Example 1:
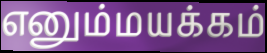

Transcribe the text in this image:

எனும்மயக்கம்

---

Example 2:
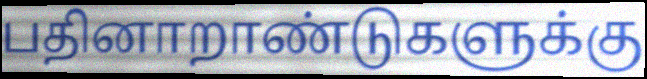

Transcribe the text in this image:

பதினாறாண்டுகளுக்கு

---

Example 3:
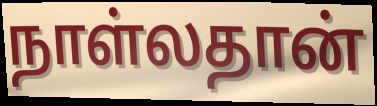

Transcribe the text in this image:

நாள்லதான்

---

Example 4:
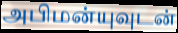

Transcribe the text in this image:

அபிமன்யுவுடன்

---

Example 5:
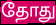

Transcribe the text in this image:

தோது